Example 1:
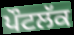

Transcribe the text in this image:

ਪੌਟਲੱਕ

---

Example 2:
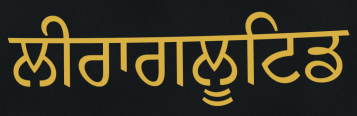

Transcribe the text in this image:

ਲੀਰਾਗਲੂਟਿਡ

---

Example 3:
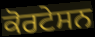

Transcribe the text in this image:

ਕੋਰਟੇਸਨ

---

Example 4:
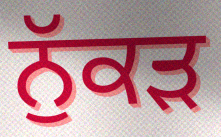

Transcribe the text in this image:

ਨੁੱਕਡ਼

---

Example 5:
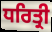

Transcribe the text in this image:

ਧਰਿਤ੍ਰੀ